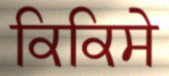
ਕਿਕਿਸੇ